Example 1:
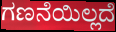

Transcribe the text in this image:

ಗಣನೆಯಿಲ್ಲದೆ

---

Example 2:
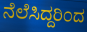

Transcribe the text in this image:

ನೆಲೆಸಿದ್ದರಿಂದ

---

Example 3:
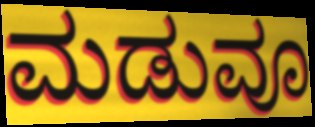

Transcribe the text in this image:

ಮಡುವೂ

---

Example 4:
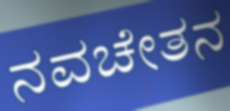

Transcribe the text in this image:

ನವಚೇತನ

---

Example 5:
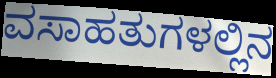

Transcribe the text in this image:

ವಸಾಹತುಗಳಲ್ಲಿನ